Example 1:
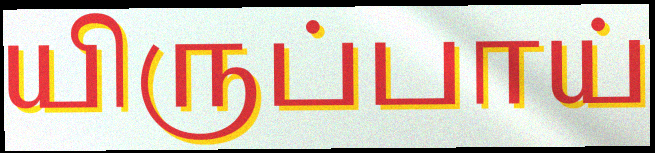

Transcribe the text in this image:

யிருப்பாய்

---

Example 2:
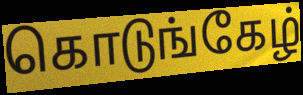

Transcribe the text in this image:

கொடுங்கேழ்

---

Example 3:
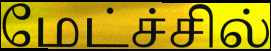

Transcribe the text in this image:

மேட்ச்சில்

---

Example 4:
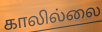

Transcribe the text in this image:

காலில்லை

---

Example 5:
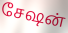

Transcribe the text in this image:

சேஷன்